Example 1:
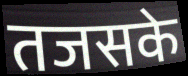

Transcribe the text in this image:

तजसके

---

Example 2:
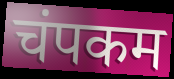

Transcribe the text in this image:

चंपकम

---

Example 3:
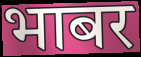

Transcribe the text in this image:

भाबर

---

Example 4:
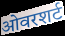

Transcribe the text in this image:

ओवरशर्ट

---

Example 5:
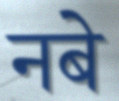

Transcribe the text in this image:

नबे